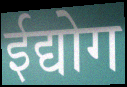
ईद्योग